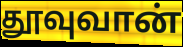
தூவுவான்